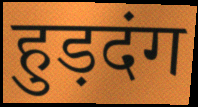
हुड़दंग